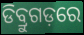
ଡିବ୍ରୁଗଡ଼ରେ